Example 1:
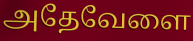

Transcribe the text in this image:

அதேவேளை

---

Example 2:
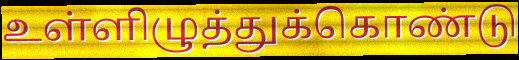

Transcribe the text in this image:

உள்ளிழுத்துக்கொண்டு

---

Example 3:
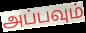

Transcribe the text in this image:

அப்பவும்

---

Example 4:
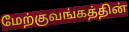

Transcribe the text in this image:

மேற்குவங்கத்தின்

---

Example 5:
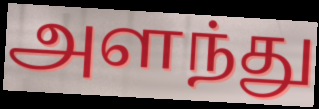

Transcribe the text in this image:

அளந்து